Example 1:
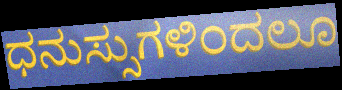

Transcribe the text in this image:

ಧನುಸ್ಸುಗಳಿಂದಲೂ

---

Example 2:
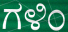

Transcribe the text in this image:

ಗಳಿಂ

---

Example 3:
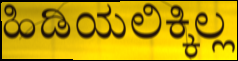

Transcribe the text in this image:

ಹಿಡಿಯಲಿಕ್ಕಿಲ್ಲ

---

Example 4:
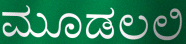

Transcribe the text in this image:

ಮೂಡಲಲಿ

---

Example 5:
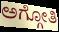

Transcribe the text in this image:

ಅಗ್ಗೋತಿ